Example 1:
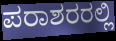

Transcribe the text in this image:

ಪರಾಶರರಲ್ಲಿ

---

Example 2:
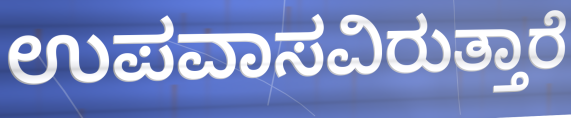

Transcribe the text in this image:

ಉಪವಾಸವಿರುತ್ತಾರೆ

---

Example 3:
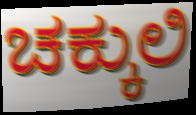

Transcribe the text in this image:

ಚಕ್ಕುಲಿ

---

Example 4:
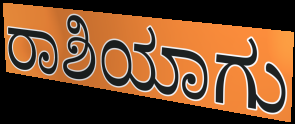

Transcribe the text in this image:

ರಾಶಿಯಾಗು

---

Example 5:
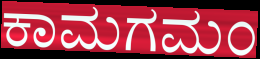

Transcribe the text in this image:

ಕಾಮಗಮಂ